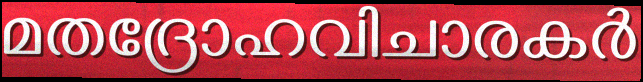
മതദ്രോഹവിചാരകർ